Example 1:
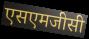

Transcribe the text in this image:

एसएमजीसी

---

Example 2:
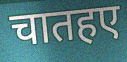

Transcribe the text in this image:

चातहए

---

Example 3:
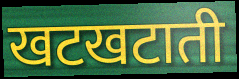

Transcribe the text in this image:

खटखटाती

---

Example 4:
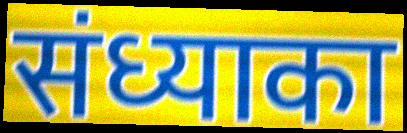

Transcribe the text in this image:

संध्याका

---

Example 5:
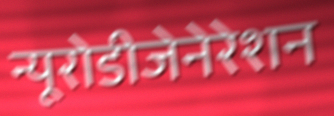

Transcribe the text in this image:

न्यूरोडीजेनेरेशन